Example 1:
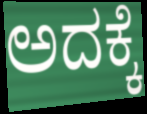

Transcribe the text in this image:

ಅದಕ್ಕೆ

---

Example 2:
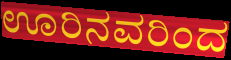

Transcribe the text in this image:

ಊರಿನವರಿಂದ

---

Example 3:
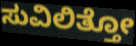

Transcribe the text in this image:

ಸುವಿಲಿತ್ತೋ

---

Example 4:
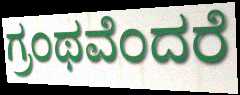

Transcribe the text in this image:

ಗ್ರಂಥವೆಂದರೆ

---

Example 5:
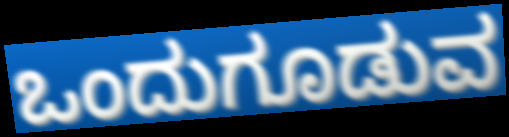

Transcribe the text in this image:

ಒಂದುಗೂಡುವ